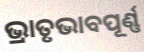
ଭ୍ରାତୃଭାବପୂର୍ଣ୍ଣ